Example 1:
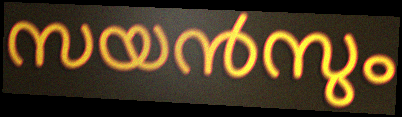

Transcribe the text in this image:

സയൻസും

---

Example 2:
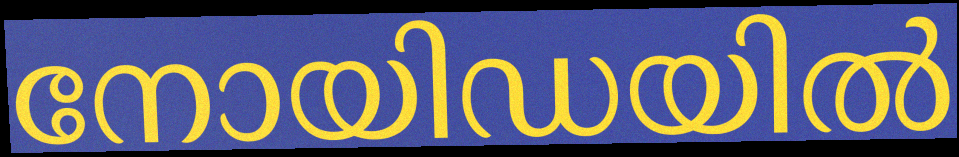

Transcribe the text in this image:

നോയിഡയിൽ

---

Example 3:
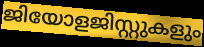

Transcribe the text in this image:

ജിയോളജിസ്റ്റുകളും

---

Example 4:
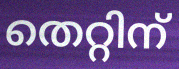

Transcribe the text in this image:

തെറ്റിന്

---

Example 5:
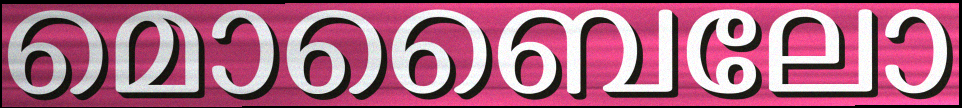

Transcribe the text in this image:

മൊബൈലോ